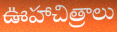
ఊహాచిత్రాలు